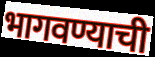
भागवण्याची